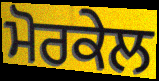
ਮੋਰਕੇਲ